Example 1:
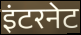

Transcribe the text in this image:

इंटरनेट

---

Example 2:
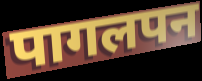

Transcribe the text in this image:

पागलपन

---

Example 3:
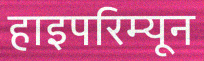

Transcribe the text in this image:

हाइपरिम्यून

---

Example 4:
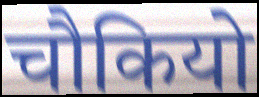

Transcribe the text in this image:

चौकियो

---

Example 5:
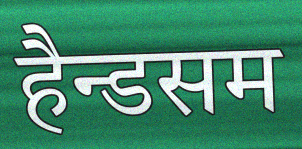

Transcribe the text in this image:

हैन्डसम